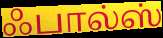
ஃபால்ஸ்